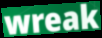
wreak